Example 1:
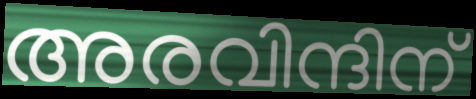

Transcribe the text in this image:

അരവിന്ദിന്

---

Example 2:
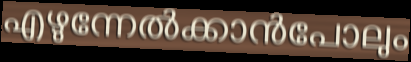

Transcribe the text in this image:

എഴുന്നേൽക്കാൻപോലും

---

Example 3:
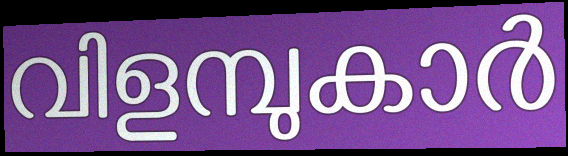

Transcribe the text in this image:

വിളമ്പുകാർ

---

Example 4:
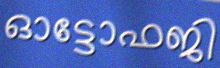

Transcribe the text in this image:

ഓട്ടോഫജി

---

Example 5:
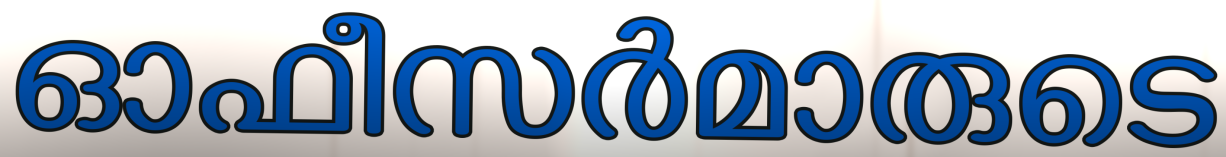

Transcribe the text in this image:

ഓഫീസർമാരുടെ